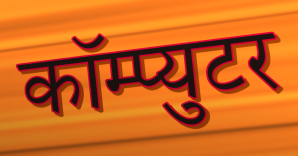
कॉम्प्युटर